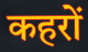
कहरों